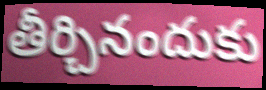
తీర్చినందుకు